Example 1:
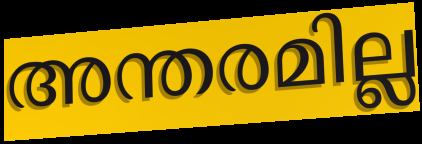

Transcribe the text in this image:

അന്തരമില്ല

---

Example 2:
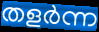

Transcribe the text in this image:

തളർന്ന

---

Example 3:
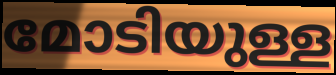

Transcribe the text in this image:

മോടിയുള്ള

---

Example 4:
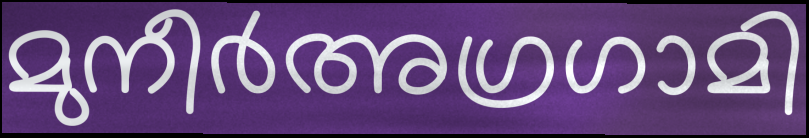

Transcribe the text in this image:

മുനീർഅഗ്രഗാമി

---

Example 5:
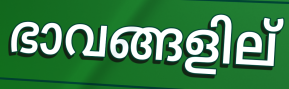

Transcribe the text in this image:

ഭാവങ്ങളില്